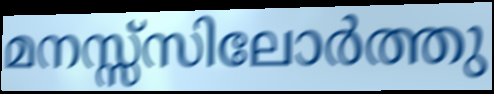
മനസ്സ്സിലോർത്തു